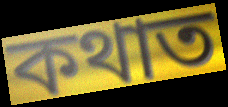
কথাত